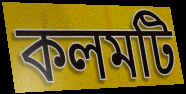
কলমটি